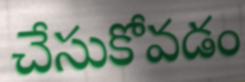
చేసుకోవడం